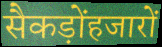
सैकड़ोंहजारों